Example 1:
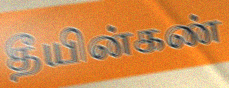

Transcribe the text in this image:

தீயின்கண்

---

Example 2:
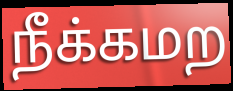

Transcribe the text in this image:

நீக்கமற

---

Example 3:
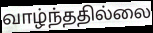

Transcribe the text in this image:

வாழ்ந்ததில்லை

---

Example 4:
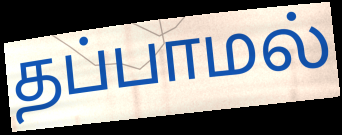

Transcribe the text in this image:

தப்பாமல்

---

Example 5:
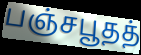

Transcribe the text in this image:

பஞ்சபூதத்